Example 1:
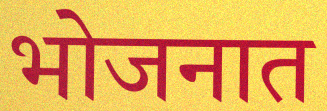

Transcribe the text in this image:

भोजनात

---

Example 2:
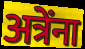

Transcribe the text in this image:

अत्रेंना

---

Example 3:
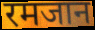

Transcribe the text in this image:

रमजान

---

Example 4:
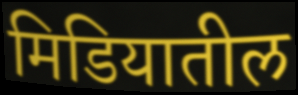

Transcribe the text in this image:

मिडियातील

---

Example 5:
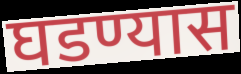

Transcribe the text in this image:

घडण्यास